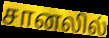
சானலில்